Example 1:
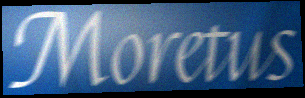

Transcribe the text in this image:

Moretus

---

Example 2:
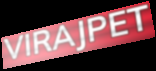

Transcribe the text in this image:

VIRAJPET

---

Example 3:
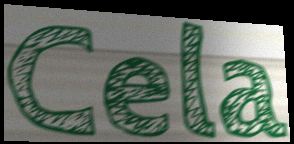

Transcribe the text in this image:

Cela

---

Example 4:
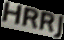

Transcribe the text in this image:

HRRJ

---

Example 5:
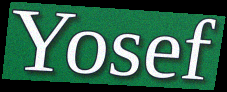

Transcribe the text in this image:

Yosef